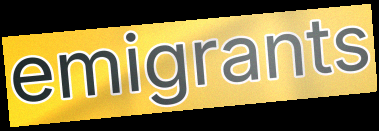
emigrants